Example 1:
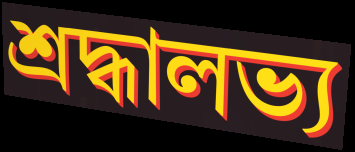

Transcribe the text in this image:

শ্রদ্ধালভ্য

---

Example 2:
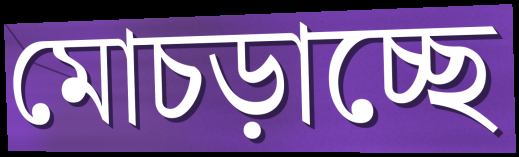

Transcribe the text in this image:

মোচড়াচ্ছে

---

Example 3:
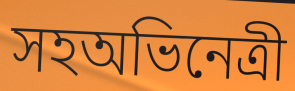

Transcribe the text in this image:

সহঅভিনেত্রী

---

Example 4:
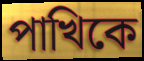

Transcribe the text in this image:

পাখিকে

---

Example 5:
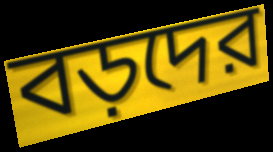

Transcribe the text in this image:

বড়দের